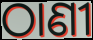
ଠାଣୀ